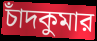
চাঁদকুমার